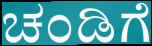
ಚಂಡಿಗೆ